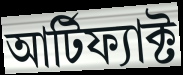
আর্টিফ্যাক্ট